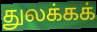
துலக்கக்